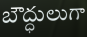
బౌద్ధులుగా